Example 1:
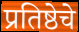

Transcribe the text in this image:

प्रतिष्ठेचे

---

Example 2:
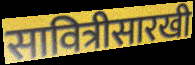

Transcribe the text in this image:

सावित्रीसारखी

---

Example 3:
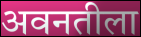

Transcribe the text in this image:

अवनतीला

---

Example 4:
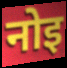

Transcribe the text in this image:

नोइ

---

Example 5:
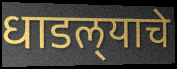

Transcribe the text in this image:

धाडल्याचे